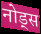
नोड्स